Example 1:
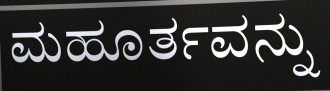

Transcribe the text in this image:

ಮಹೂರ್ತವನ್ನು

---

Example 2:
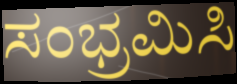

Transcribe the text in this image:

ಸಂಭ್ರಮಿಸಿ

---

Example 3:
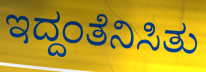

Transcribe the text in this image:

ಇದ್ದಂತೆನಿಸಿತು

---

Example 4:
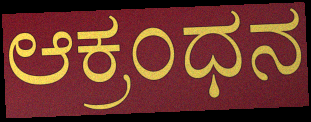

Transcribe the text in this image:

ಆಕ್ರಂಧನ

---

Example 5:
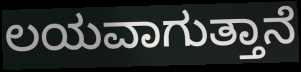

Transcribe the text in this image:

ಲಯವಾಗುತ್ತಾನೆ